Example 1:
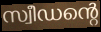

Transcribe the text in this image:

സ്വീഡന്റെ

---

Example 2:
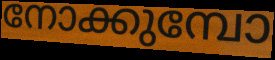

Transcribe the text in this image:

നോക്കുമ്പോ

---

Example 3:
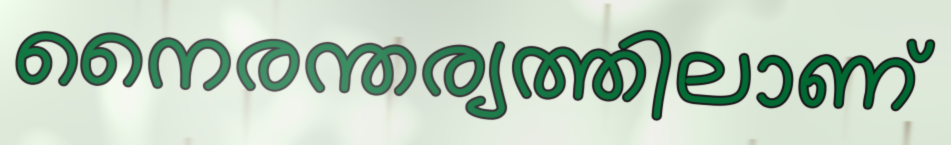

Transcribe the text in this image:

നൈരന്തര്യത്തിലാണ്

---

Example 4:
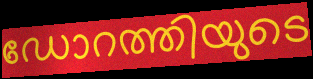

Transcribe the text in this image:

ഡോറത്തിയുടെ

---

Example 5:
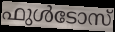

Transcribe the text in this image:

ഫുൾടോസ്